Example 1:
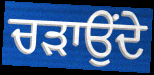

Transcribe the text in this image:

ਚੜਾਉਂਦੇ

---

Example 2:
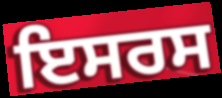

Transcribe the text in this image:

ਇਸਰਸ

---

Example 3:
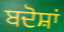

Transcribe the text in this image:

ਬਦੋਸ਼ਾਂ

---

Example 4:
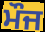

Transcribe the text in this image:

ਮੌਜ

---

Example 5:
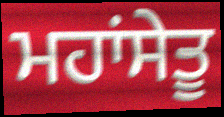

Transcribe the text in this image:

ਮਹਾਂਸੇਤੂ